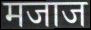
मजाज